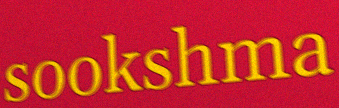
sookshma